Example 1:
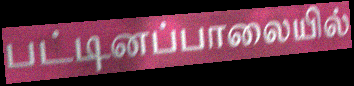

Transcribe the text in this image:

பட்டினப்பாலையில்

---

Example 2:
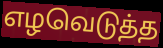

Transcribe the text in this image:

எழவெடுத்த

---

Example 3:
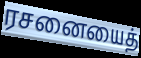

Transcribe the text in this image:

ரசனையைத்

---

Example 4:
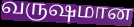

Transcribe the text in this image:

வருஷமான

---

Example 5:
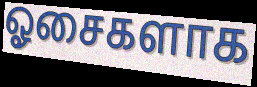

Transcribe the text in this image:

ஓசைகளாக